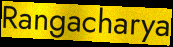
Rangacharya